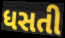
ધસતી